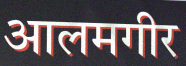
आलमगीर